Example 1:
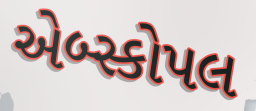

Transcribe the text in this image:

એબ્સ્કોપલ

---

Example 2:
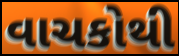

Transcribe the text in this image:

વાચકોથી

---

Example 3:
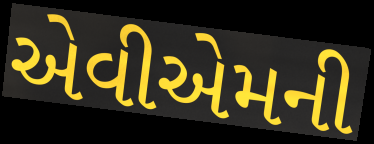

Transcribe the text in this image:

એવીએમની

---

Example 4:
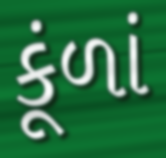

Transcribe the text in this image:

કૂંળાં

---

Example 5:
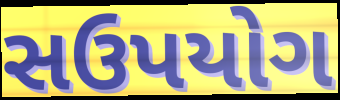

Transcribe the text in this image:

સઉપયોગ